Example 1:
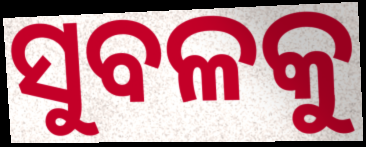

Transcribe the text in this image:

ସୁବଳକୁ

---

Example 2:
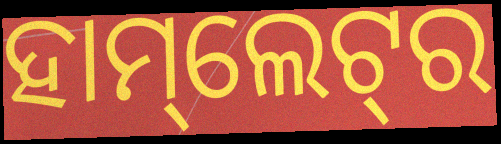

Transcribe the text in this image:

ହାମ୍‌ଲେଟ୍‌ର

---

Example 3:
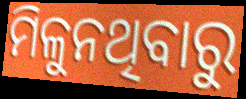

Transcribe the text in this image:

ମିଳୁନଥିବାରୁ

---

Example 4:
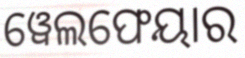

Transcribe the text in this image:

ୱେଲଫେୟାର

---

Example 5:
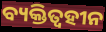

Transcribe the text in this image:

ବ୍ୟକ୍ତିତ୍ୱହୀନ